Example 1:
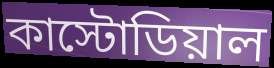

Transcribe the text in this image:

কাস্টোডিয়াল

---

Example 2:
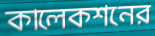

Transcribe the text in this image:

কালেকশনের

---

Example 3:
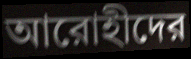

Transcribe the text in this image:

আরোহীদের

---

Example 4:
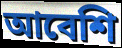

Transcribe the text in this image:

আবেশি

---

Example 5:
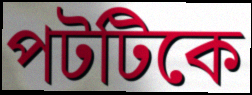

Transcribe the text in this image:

পটটিকে